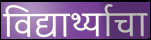
विद्यार्थ्याचा